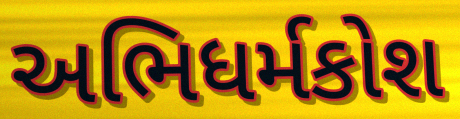
અભિધર્મકોશ